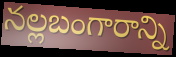
నల్లబంగారాన్ని